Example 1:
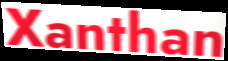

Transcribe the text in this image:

Xanthan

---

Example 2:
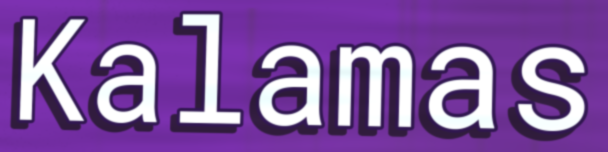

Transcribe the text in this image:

Kalamas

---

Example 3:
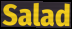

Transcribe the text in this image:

Salad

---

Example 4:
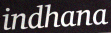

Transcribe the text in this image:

indhana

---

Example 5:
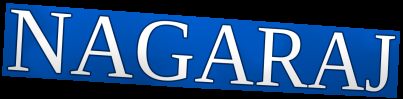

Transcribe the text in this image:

NAGARAJ